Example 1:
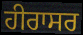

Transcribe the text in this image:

ਹੀਰਾਸਰ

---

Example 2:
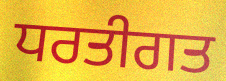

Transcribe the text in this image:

ਧਰਤੀਗਤ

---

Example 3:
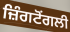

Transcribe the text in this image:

ਜ਼ਿੰਗਟੋਂਗਲੀ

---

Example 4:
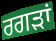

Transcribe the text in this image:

ਰਗੜਾਂ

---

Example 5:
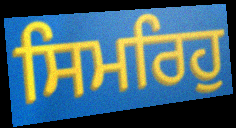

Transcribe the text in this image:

ਸਿਮਰਿਹੁ